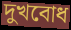
দুখবোধ